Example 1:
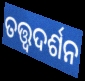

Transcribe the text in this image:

ତତ୍ତ୍ଵଦର୍ଶନ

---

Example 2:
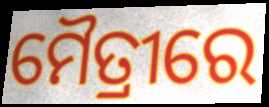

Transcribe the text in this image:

ମୈତ୍ରୀରେ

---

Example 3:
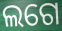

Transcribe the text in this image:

ଲଗେ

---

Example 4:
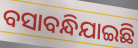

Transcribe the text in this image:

ବସାବନ୍ଧିଯାଇଛି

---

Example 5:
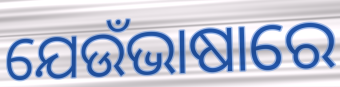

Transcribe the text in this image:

ଯେଉଁଭାଷାରେ